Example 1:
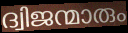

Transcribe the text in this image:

ദ്വിജന്മാരും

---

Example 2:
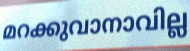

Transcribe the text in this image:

മറക്കുവാനാവില്ല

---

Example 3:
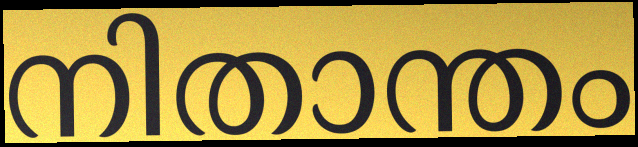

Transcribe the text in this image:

നിതാന്തം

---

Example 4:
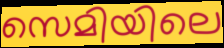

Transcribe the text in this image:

സെമിയിലെ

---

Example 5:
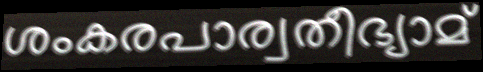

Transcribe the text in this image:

ശംകരപാര്വതീഭ്യാമ്